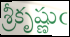
శ్రీకృష్ణుఁ